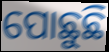
ପୋଛୁଛି